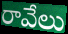
రావేలు